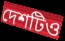
দেশটিও